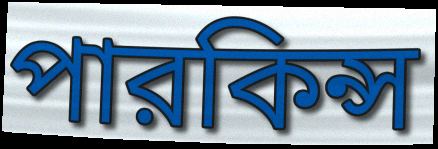
পারকিন্স